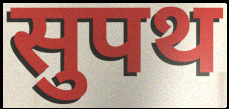
सुपथ